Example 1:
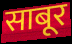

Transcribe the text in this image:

साबूर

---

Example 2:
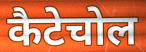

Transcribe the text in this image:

कैटेचोल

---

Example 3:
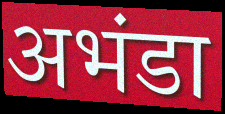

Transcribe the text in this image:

अभंडा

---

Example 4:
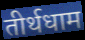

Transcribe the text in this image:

तीर्थधाम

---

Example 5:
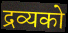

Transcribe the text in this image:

द्रव्यको